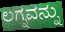
ಲಗ್ನವನ್ನು